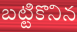
బట్టికొనిన